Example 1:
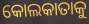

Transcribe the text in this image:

କୋଲକାତାକୁ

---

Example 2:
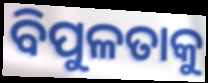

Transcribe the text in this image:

ବିପୁଳତାକୁ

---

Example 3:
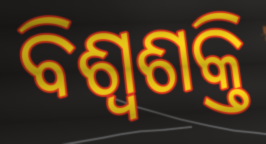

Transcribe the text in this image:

ବିଶ୍ଵଶକ୍ତି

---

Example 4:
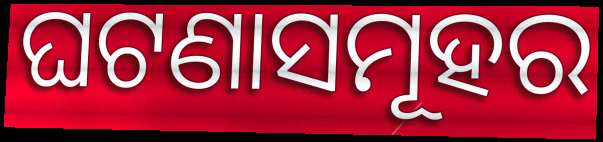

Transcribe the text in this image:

ଘଟଣାସମୂହର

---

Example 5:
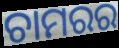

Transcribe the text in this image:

ଚାମରର